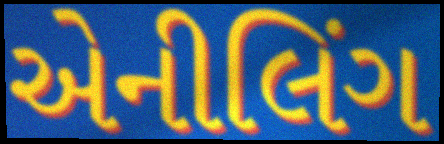
એનીલિંગ